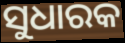
ସୁଧାରକ